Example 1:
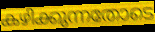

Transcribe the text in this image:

കഴിക്കുന്നതോടെ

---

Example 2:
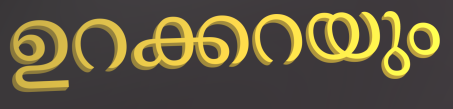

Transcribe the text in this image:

ഉറക്കറയും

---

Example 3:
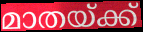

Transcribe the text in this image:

മാതയ്ക്ക്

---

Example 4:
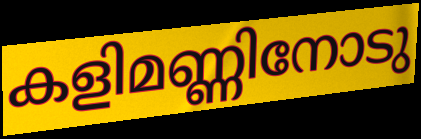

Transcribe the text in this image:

കളിമണ്ണിനോടു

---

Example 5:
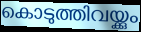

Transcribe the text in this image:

കൊടുത്തിവയ്ക്കും